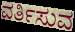
ವರ್ತಿಸುವ